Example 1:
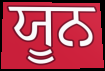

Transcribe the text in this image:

ਯੂਨ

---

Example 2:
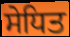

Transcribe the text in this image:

ਸੇਧਿਤ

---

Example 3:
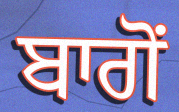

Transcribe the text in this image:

ਬਾਗੋਂ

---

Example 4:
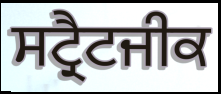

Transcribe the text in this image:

ਸਟ੍ਰੈਟਜੀਕ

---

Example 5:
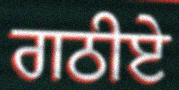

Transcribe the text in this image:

ਗਠੀਏ